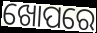
ଖୋପରେ